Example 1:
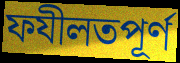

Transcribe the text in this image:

ফযীলতপূর্ণ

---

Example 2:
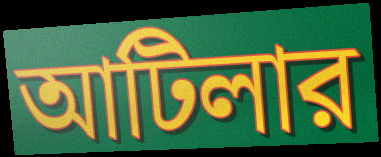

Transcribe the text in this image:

আটিলার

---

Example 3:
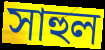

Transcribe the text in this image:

সাহুল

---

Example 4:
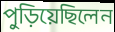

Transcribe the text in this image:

পুড়িয়েছিলেন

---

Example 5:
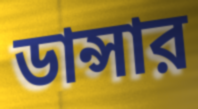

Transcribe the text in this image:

ডান্সার